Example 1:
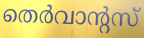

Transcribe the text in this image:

തെർവാന്റസ്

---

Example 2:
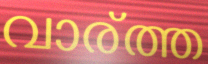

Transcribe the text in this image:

വാര്ത്ത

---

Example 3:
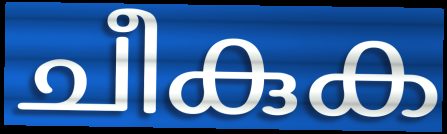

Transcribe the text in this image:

ചീകുക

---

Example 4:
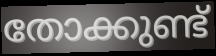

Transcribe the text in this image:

തോക്കുണ്ട്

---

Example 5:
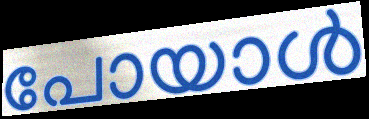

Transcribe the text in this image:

പോയാൾ